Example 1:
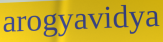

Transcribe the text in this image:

arogyavidya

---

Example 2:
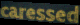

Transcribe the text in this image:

caressed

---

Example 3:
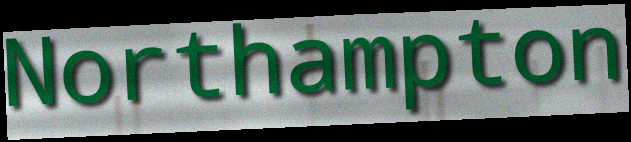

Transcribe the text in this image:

Northampton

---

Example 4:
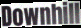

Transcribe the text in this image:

Downhill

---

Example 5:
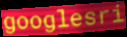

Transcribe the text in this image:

googlesri